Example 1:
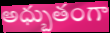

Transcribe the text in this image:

అధ్బుతంగా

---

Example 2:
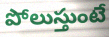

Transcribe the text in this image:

పోలుస్తుంటే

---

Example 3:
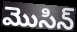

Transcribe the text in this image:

మొసిన్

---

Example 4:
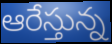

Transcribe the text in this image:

ఆరేస్తున్న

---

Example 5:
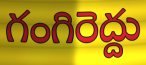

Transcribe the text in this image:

గంగిరెద్దు